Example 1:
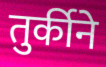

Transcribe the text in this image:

तुर्कीने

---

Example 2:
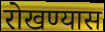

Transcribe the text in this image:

रोखण्यास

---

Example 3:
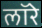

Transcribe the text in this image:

लॉरे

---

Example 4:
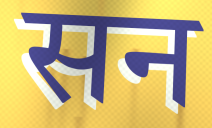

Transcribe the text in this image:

सन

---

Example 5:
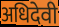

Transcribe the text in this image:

अधिदेवी